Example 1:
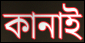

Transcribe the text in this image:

কানাই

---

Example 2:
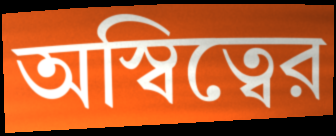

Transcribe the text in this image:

অস্বিত্বের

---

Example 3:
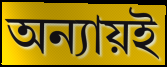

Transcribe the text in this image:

অন্যায়ই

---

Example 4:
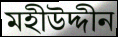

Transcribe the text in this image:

মহীউদ্দীন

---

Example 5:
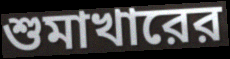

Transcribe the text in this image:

শুমাখারের